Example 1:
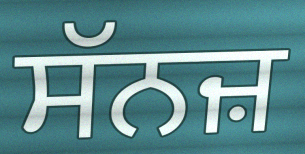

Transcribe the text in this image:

ਸੱਨਜ਼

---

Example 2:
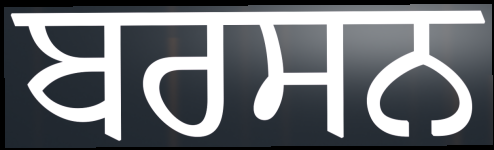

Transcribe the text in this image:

ਬਰਸਨ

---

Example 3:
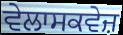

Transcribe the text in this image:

ਵੇਲਾਸਕਵੇਜ਼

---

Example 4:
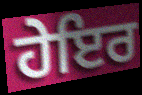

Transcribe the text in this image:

ਹੇਇਰ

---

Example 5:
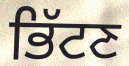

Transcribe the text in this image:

ਭਿੱਟਣ